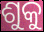
ଶୁକୁ